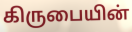
கிருபையின்